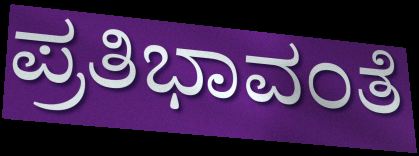
ಪ್ರತಿಭಾವಂತೆ